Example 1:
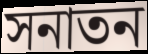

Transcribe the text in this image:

সনাতন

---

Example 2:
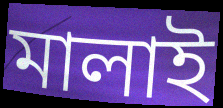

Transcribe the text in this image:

মালাই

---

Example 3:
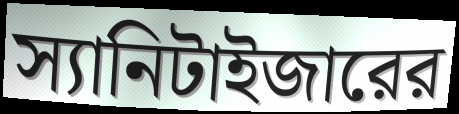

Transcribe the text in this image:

স্যানিটাইজারের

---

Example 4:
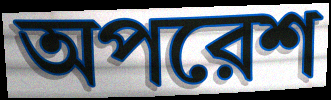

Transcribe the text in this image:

অপরেশ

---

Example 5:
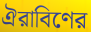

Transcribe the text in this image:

ঐরাবিণের